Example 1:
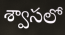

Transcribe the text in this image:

శ్వాసలో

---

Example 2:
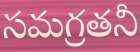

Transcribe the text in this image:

సమగ్రతనీ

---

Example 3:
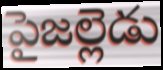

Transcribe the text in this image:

పైజల్లెడు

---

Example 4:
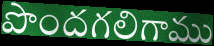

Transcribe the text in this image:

పొందగలిగాము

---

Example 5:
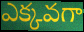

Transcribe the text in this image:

ఎక్కవగా